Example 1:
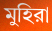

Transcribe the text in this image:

মুহিরা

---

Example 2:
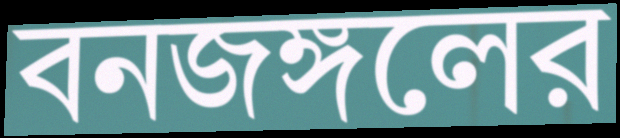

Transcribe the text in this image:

বনজঙ্গলের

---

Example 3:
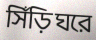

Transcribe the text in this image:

সিঁড়িঘরে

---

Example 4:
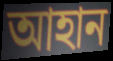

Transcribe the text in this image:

আহান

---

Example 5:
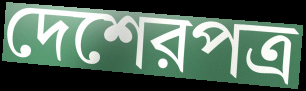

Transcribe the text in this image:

দেশেরপত্র